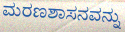
ಮರಣಶಾಸನವನ್ನು